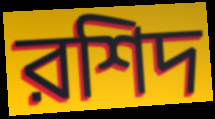
রশিদ